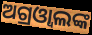
ଅଗ୍ରଓ୍ବାଲଙ୍କ